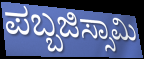
ಪಬ್ಬಜಿಸ್ಸಾಮಿ